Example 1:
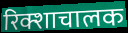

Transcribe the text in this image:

रिक्शाचालक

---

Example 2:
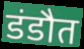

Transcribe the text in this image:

डंडौत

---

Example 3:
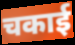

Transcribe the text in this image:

चकाई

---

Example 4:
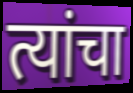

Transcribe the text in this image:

त्यांचा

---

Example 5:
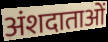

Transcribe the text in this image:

अंशदाताओं